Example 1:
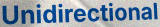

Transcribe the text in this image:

Unidirectional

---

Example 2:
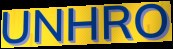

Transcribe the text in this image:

UNHRO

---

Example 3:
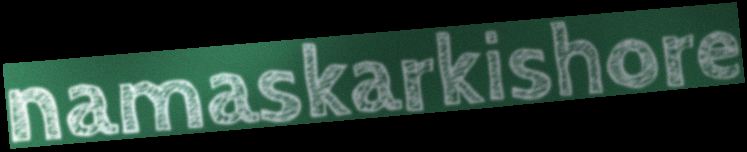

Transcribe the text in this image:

namaskarkishore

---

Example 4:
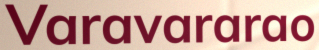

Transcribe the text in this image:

Varavararao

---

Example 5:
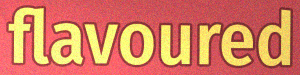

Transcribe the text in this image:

flavoured